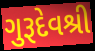
ગુરૂદેવશ્રી